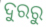
ଦୁରରୁ